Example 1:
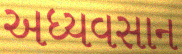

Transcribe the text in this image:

અધ્યવસાન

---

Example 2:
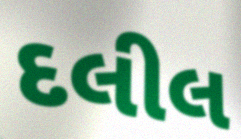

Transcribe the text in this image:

દલીલ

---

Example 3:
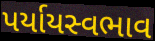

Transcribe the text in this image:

પર્યાયસ્વભાવ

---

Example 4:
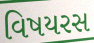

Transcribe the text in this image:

વિષયરસ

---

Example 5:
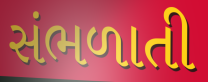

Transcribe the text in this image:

સંભળાતી